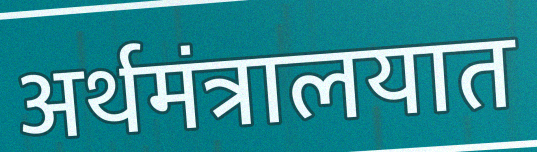
अर्थमंत्रालयात